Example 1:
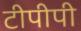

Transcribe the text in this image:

टीपीपी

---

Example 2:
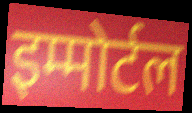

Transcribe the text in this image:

इम्मोर्टल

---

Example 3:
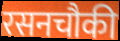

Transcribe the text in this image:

रसनचौकी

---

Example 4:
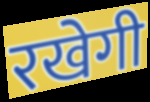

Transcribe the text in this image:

रखेगी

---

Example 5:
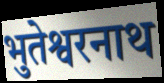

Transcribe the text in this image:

भुतेश्वरनाथ